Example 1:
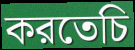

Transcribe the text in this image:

করতেচি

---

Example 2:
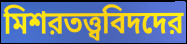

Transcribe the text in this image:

মিশরতত্ত্ববিদদের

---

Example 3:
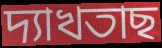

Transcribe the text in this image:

দ্যাখতাছ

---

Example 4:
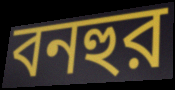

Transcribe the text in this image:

বনহুর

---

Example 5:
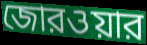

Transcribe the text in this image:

জোরওয়ার